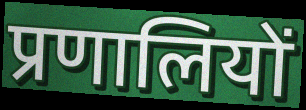
प्रणालियों